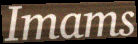
Imams